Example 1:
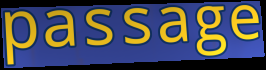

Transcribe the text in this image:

passage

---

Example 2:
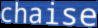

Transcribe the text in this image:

chaise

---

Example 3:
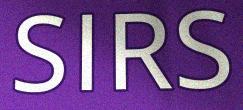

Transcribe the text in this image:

SIRS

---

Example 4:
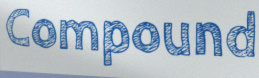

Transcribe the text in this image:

Compound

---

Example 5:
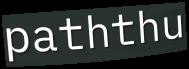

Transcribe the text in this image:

paththu